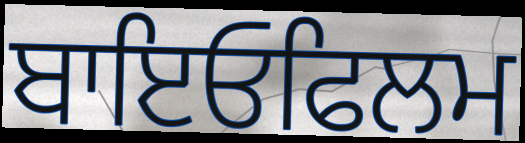
ਬਾਇਓਫਿਲਮ